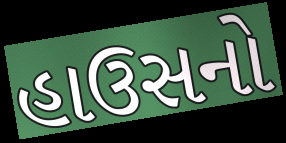
હાઉસનો